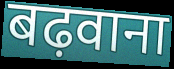
बढ़वाना